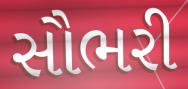
સૌભરી